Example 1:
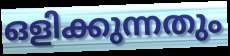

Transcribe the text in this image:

ഒളിക്കുന്നതും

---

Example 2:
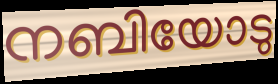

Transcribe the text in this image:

നബിയോടു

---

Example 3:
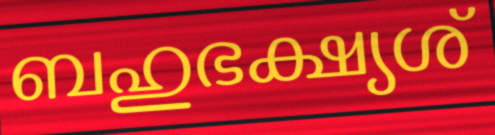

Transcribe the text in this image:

ബഹുഭക്ഷ്യശ്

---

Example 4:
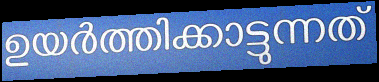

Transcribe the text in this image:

ഉയർത്തിക്കാട്ടുന്നത്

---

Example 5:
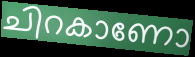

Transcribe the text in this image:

ചിറകാണോ